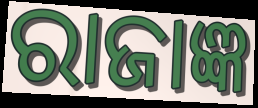
ରାଜାଜ୍ଞ